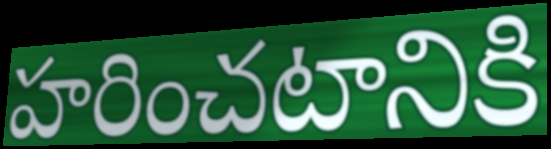
హరించటానికి